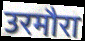
उरमौरा